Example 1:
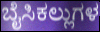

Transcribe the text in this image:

ಬೈಸಿಕಲ್ಲುಗಳ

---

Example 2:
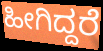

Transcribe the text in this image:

ಹೀಗಿದ್ದರೆ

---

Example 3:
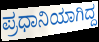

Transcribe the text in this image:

ಪ್ರಧಾನಿಯಾಗಿದ್ದ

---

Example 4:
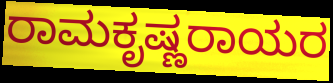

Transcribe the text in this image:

ರಾಮಕೃಷ್ಣರಾಯರ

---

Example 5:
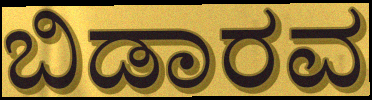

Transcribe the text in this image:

ಬಿಡಾರವ